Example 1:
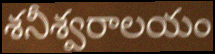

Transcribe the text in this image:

శనీశ్వరాలయం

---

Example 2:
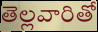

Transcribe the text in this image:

తెల్లవారితో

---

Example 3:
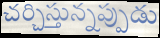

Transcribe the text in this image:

చర్చిస్తున్నప్పుడు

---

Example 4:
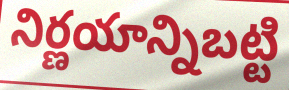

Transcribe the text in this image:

నిర్ణయాన్నిబట్టి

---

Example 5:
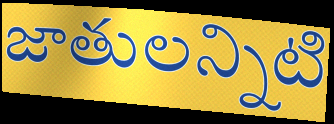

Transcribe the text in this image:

జాతులన్నిటి